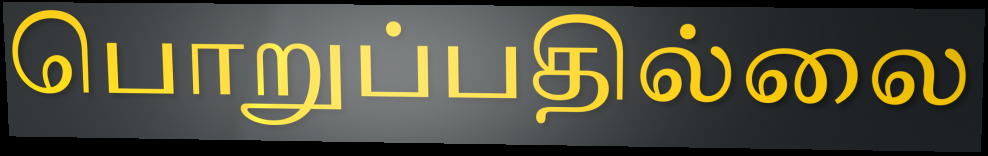
பொறுப்பதில்லை